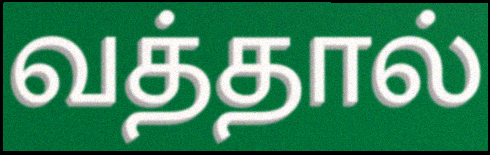
வத்தால்